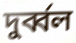
দুর্ব্বল